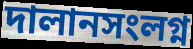
দালানসংলগ্ন